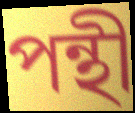
পন্থী